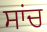
ਸਾਂਚ